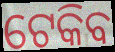
ଟେକିବ